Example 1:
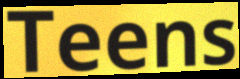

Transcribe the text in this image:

Teens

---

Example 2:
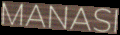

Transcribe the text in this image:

MANASI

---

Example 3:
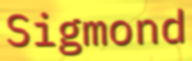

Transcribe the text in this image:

Sigmond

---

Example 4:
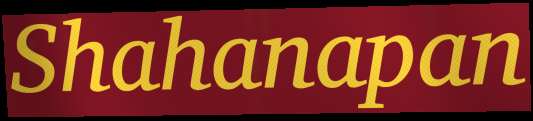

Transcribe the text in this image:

Shahanapan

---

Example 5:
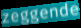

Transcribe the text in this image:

zeggende